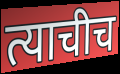
त्याचीच